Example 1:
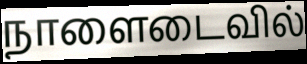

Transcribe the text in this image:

நாளைடைவில்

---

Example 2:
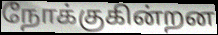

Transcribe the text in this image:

நோக்குகின்றன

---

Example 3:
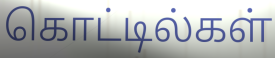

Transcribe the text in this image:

கொட்டில்கள்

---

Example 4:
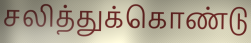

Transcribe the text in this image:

சலித்துக்கொண்டு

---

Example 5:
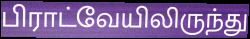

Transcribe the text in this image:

பிராட்வேயிலிருந்து